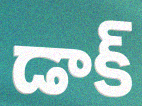
డాక్